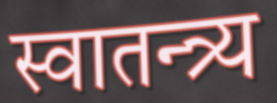
स्वातन्त्र्य